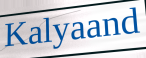
Kalyaand